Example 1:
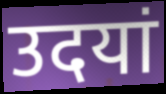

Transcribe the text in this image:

उदयां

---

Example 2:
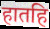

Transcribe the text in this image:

हातहि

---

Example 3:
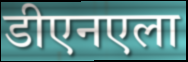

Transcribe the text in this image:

डीएनएला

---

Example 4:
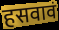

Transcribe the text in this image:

हसवावं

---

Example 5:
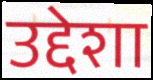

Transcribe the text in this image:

उद्देशा